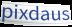
pixdaus